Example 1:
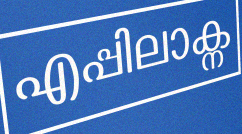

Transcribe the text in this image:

എപ്പിലാക്ന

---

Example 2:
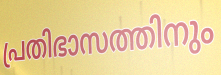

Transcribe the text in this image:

പ്രതിഭാസത്തിനും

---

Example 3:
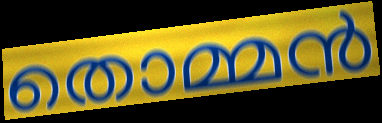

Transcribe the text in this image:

തൊമ്മൻ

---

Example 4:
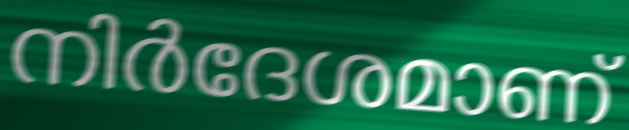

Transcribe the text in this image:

നിർദേശമാണ്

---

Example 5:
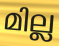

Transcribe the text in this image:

മില്ല